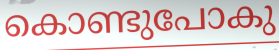
കൊണ്ടുപോകു